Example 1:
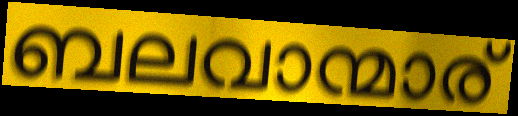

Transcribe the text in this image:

ബലവാന്മാര്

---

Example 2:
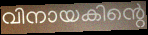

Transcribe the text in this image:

വിനായകിന്റെ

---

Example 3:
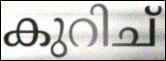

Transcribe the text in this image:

കുറിച്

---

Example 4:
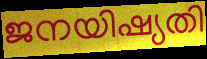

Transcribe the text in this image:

ജനയിഷ്യതി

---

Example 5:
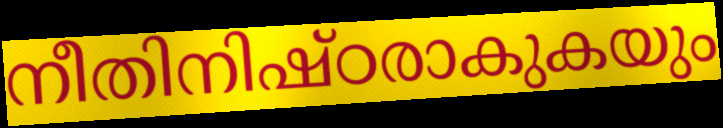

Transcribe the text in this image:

നീതിനിഷ്ഠരാകുകയും